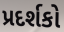
પ્રદર્શકો